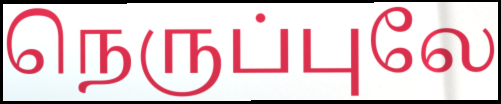
நெருப்புலே